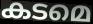
കടമെ